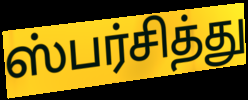
ஸ்பர்சித்து